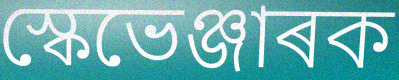
স্কেভেঞ্জাৰক